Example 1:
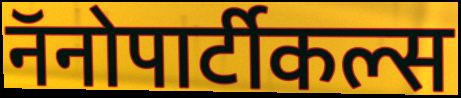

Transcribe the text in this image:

नॅनोपार्टीकल्स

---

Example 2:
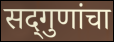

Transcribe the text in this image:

सद्‍गुणांचा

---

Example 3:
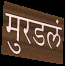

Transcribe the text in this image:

मुरडलं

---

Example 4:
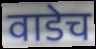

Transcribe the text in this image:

वाडेच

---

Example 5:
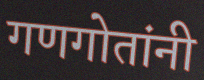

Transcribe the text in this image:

गणगोतांनी